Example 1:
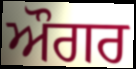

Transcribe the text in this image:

ਔਗਰ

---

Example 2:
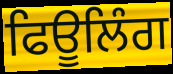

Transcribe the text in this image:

ਫਿਊਲਿੰਗ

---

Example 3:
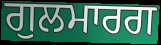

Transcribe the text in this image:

ਗੁਲਮਾਰਗ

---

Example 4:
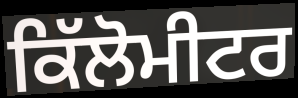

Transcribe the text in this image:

ਕਿੱਲੋਮੀਟਰ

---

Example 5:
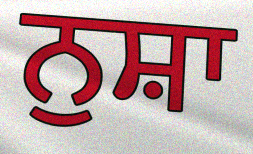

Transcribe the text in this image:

ਨੁਸ਼ਾ